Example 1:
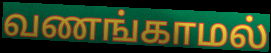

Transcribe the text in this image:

வணங்காமல்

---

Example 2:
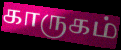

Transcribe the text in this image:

காருகம்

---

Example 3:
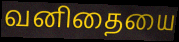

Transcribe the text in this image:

வனிதையை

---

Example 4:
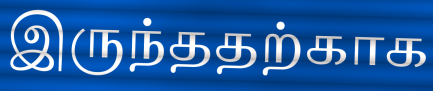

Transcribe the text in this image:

இருந்ததற்காக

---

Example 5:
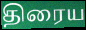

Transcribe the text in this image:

திரைய